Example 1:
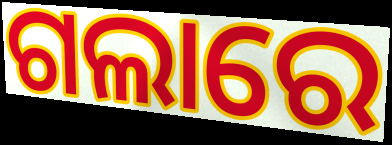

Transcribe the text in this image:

ଗଲାରେ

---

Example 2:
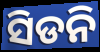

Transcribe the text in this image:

ସିଡନି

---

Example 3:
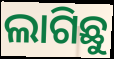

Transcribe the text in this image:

ଲାଗିଛୁ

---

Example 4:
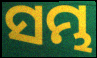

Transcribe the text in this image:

ସମ୍ଭ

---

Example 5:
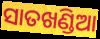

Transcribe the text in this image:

ସାତଖଣ୍ଡିଆ